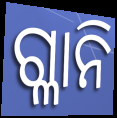
ଗ୍ଳାନି